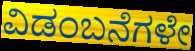
ವಿಡಂಬನೆಗಳೇ